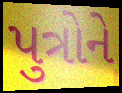
પુત્રોને